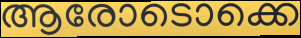
ആരോടൊക്കെ